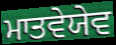
ਮਾਤਵੇਯੇਵ